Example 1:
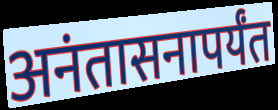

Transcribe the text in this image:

अनंतासनापर्यंत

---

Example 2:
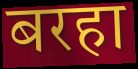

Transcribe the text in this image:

बरहा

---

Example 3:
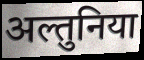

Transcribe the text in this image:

अल्तुनिया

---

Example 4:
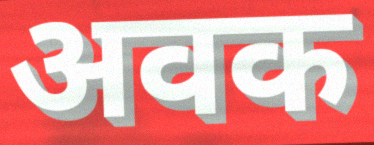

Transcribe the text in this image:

अवक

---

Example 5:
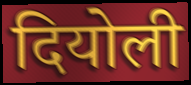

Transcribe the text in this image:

दियोली